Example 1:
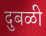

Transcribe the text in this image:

दुबळी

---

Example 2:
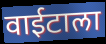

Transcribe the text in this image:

वाईटाला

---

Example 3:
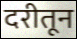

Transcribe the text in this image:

दरीतून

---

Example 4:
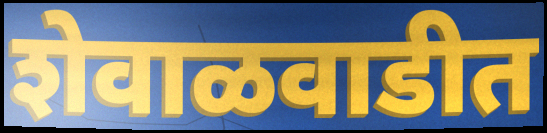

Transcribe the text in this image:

शेवाळवाडीत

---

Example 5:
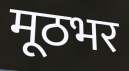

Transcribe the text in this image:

मूठभर